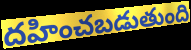
దహించబడుతుంది